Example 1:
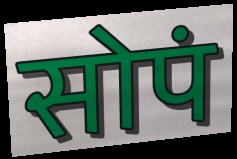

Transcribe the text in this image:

सोपं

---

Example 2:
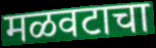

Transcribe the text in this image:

मळवटाचा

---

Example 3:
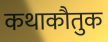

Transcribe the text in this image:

कथाकौतुक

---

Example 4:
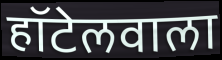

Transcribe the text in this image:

हॉटेलवाला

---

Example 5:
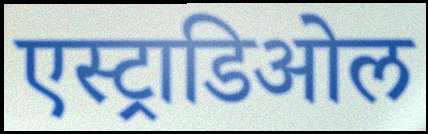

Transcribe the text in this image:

एस्ट्राडिओल